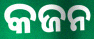
କଜନ